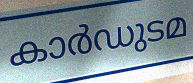
കാർഡുടമ